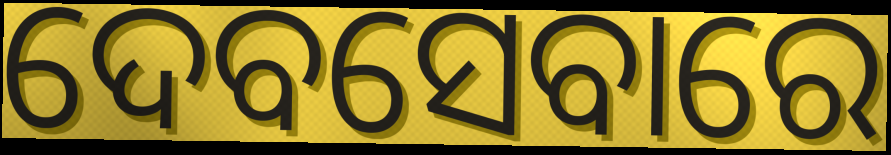
ଦେବସେବାରେ